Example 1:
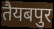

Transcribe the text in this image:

तैयबपुर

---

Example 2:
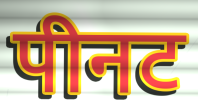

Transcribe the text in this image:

पीनट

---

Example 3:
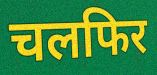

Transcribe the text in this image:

चलफिर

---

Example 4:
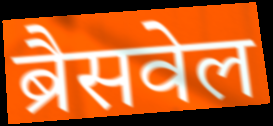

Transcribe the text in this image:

ब्रैसवेल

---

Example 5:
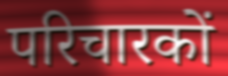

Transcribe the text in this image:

परिचारकों